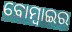
ବୋମ୍ବାଇର